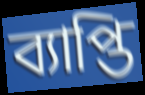
ব্যাপ্তি